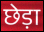
छेड़ा